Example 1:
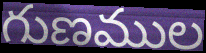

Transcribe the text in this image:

గుణముల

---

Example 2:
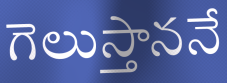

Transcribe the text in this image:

గెలుస్తాననే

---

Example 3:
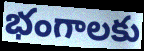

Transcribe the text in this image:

భంగాలకు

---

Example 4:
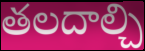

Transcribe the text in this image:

తలదాల్చి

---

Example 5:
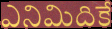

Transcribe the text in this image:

ఎనిమిదికే